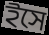
ইসে